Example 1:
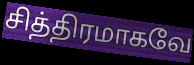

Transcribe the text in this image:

சித்திரமாகவே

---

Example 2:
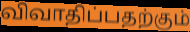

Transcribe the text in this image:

விவாதிப்பதற்கும்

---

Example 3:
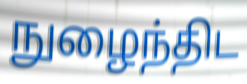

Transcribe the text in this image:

நுழைந்திட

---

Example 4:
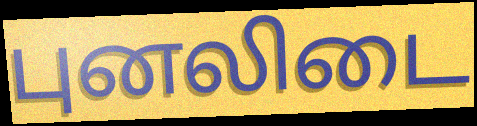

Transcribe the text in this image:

புனலிடை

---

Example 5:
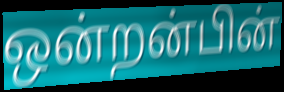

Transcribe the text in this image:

ஒன்றன்பின்